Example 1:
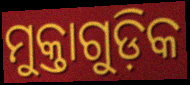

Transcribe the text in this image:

ମୁକ୍ତାଗୁଡ଼ିକ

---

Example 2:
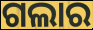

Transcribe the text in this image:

ଗଲାର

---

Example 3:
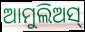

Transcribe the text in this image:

ଆମୁଲିଅସ୍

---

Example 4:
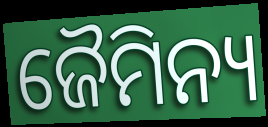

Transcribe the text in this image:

ଜୈମିନ୍ୟ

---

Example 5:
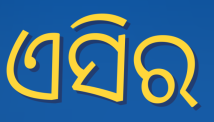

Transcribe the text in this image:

ଏସିର